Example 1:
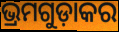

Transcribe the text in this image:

ଭ୍ରମଗୁଡ଼ାକର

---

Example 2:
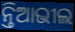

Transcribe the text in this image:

ନ୍ତିଆଭୀଲ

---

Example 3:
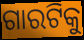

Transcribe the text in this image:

ଗାରଟିକୁ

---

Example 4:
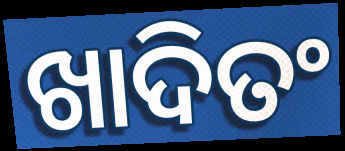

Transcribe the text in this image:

ଖାଦିତଂ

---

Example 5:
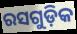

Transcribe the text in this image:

ରସଗୁଡ଼ିକ